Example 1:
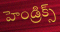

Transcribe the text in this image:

హెండ్రిక్స్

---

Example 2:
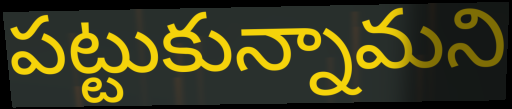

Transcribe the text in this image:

పట్టుకున్నామని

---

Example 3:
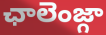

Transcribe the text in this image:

ఛాలెంజ్గా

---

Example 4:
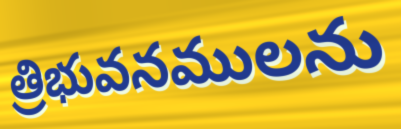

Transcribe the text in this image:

త్రిభువనములను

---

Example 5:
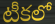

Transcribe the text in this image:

టీకలో